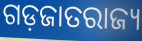
ଗଡ଼ଜାତରାଜ୍ୟ